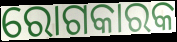
ରୋଗକାରକ